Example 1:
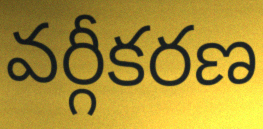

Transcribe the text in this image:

వర్గీకరణ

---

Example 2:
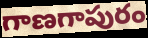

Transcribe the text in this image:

గాణగాపురం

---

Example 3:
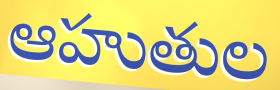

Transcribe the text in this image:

ఆహుతుల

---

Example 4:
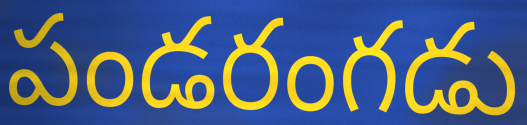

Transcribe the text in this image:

పండరంగడు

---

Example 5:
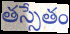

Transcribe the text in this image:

తస్సేతం